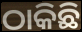
ଠାକିଛି